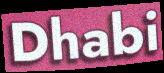
Dhabi